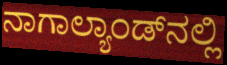
ನಾಗಾಲ್ಯಾಂಡ್‌ನಲ್ಲಿ